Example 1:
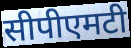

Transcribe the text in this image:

सीपीएमटी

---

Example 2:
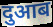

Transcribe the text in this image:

दुआब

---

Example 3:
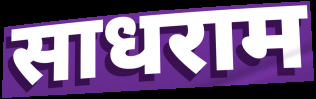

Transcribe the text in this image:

साधराम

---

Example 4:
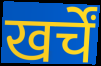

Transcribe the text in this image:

खर्चें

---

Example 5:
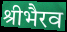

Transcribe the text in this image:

श्रीभैरव